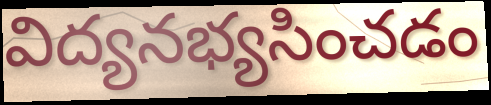
విద్యనభ్యసించడం